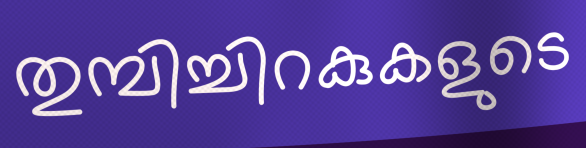
തുമ്പിച്ചിറകുകളുടെ